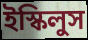
ইস্কিলুস